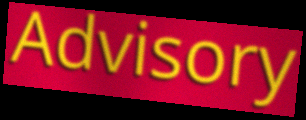
Advisory